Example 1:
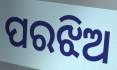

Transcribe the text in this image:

ପରଝିଅ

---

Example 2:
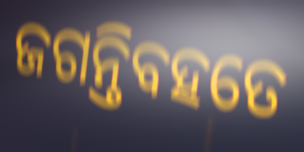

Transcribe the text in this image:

ଜଗନ୍ତିବହତେ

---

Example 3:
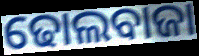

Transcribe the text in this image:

ଢୋଲବାଜା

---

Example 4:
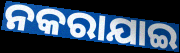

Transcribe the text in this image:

ନକରାଯାଇ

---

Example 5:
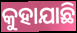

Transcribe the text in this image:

କୁହାଯାଛି